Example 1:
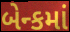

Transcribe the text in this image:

બેન્કમાં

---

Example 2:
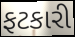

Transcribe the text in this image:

ફટકારી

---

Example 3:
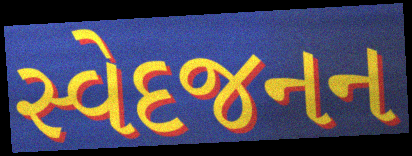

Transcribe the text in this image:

સ્વેદજનન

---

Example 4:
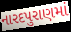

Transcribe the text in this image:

નારદપુરાણમાં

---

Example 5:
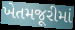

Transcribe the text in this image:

ખેતમજૂરીમાં